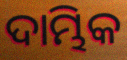
ଦାମ୍ଭିକ